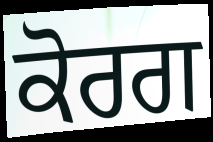
ਕੋਰਗ